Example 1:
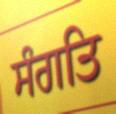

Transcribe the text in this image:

ਸੰਗਤਿ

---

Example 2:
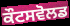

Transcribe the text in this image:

ਕੌਟਸਵੋਲਡ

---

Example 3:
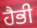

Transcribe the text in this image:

ਹੈਭੀ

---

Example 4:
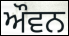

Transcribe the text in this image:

ਔਵਨ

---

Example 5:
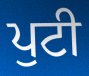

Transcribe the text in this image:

ਪੁਟੀ